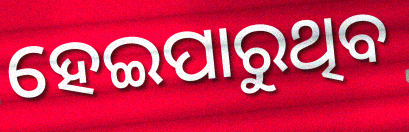
ହେଇପାରୁଥିବ